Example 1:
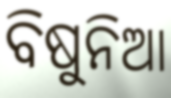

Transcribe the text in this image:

ବିଷୁନିଆ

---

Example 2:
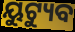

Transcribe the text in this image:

ୟୁଟ୍ୟୁବ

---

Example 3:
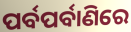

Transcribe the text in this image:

ପର୍ବପର୍ବାଣିରେ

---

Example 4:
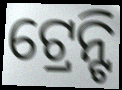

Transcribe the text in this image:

ଟ୍ରେନ୍ଟି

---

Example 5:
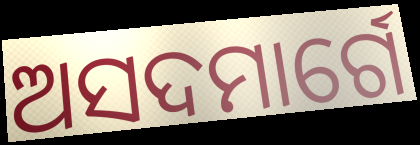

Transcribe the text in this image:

ଅସଦମାର୍ଗେ